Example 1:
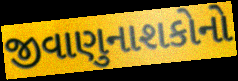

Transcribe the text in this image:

જીવાણુનાશકોનો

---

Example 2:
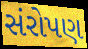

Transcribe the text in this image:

સંરોપણ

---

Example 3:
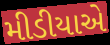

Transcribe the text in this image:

મીડીયાએ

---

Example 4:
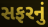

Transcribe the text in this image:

સફરનું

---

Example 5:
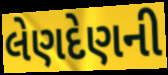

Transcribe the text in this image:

લેણદેણની